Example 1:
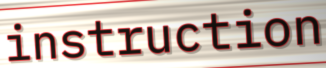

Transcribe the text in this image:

instruction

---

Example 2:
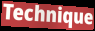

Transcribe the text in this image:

Technique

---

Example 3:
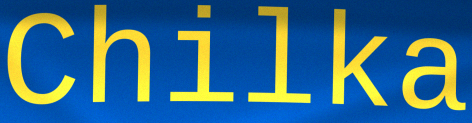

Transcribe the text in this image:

Chilka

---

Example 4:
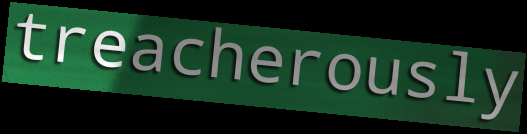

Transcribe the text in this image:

treacherously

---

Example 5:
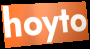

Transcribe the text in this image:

hoyto